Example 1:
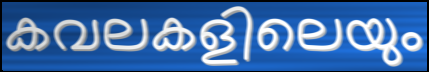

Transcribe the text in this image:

കവലകളിലെയും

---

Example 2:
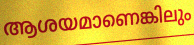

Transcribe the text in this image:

ആശയമാണെങ്കിലും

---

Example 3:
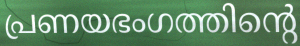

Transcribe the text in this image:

പ്രണയഭംഗത്തിന്റെ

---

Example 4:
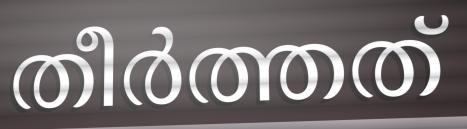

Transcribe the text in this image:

തീർത്തത്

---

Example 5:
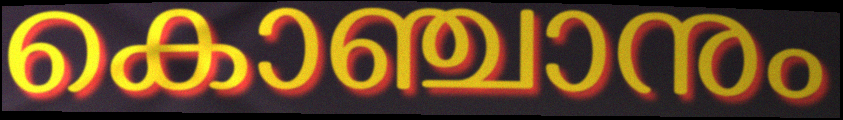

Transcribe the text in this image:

കൊഞ്ചാനും